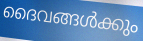
ദൈവങ്ങൾക്കും